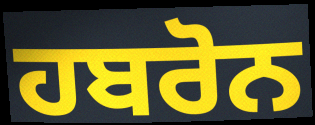
ਹਬਰੋਨ